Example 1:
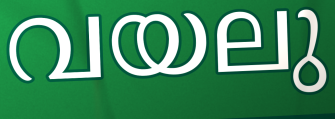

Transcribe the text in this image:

വയലു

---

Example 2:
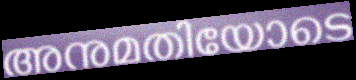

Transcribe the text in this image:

അനുമതിയോടെ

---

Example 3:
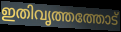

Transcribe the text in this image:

ഇതിവൃത്തത്തോട്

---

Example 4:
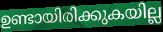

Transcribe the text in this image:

ഉണ്ടായിരിക്കുകയില്ല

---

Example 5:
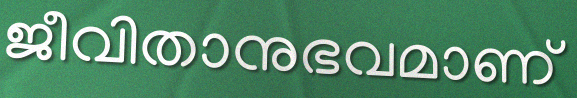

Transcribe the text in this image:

ജീവിതാനുഭവമാണ്